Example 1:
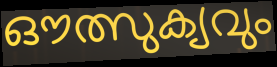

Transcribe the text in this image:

ഔത്സുക്യവും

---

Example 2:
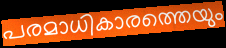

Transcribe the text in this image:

പരമാധികാരത്തെയും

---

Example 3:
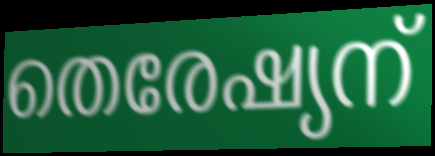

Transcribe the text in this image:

തെരേഷ്യന്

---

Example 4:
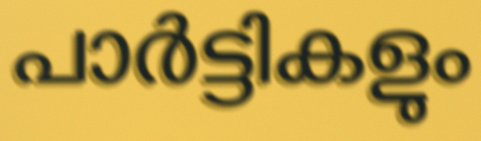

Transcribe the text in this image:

പാർട്ടികളും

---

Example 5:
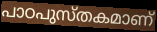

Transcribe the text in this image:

പാഠപുസ്തകമാണ്